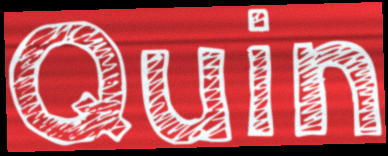
Quin